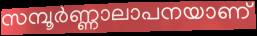
സമ്പൂർണ്ണാലാപനയാണ്